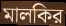
মালকির